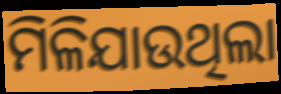
ମିଳିଯାଉଥିଲା